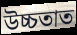
উচ্চতাত